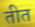
तीत